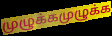
முழுக்கமுழுக்க